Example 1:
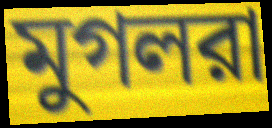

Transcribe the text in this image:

মুগলরা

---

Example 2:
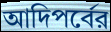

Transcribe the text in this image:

আদিপর্বের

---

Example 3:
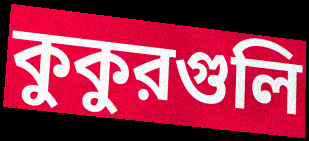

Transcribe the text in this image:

কুকুরগুলি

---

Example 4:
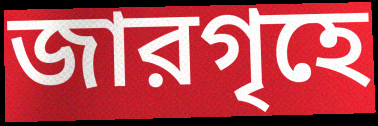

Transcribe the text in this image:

জারগৃহে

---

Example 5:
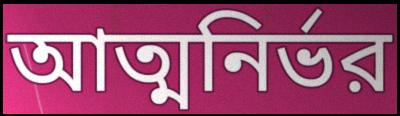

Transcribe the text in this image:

আত্মনির্ভর